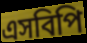
এসবিপি